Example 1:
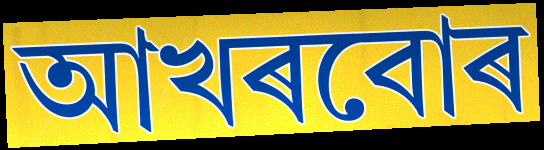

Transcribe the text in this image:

আখৰবোৰ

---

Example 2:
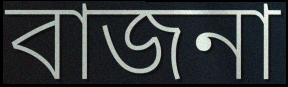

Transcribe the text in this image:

বাজনা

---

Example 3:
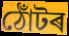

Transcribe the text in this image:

ঠোঁটৰ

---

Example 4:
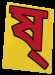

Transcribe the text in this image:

ষ্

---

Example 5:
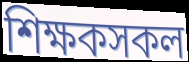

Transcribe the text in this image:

শিক্ষকসকল